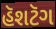
હૅશટૅગ